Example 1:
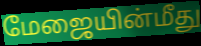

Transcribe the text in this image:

மேஜையின்மீது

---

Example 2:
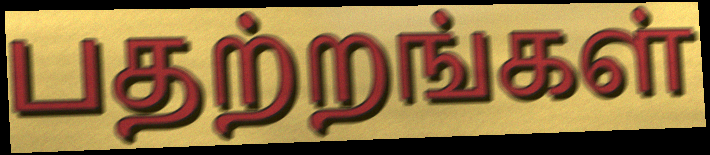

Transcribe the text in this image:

பதற்றங்கள்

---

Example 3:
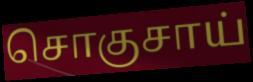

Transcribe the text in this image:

சொகுசாய்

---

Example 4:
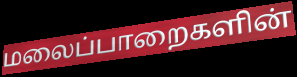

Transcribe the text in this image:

மலைப்பாறைகளின்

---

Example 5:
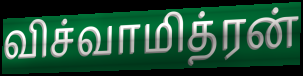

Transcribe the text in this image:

விச்வாமித்ரன்